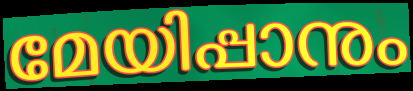
മേയിപ്പാനും